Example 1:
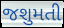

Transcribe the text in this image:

જશુમતી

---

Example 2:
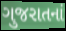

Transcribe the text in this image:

ગુજરાતનાં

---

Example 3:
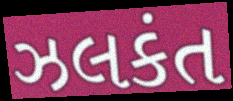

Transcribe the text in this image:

ઝલકંત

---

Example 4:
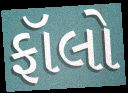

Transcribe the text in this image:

ફૉલો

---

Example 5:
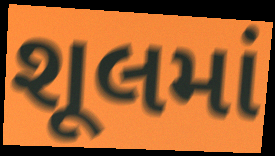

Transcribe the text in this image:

શૂલમાં